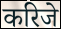
करिजे